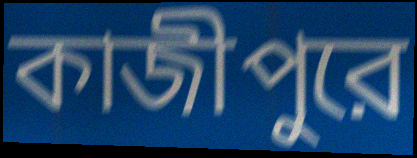
কাজীপুরে